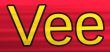
Vee